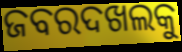
ଜବରଦଖଲକୁ